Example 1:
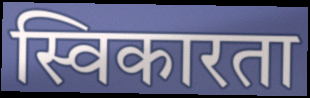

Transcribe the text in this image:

स्विकारता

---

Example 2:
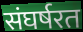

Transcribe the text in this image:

संघर्षरत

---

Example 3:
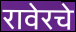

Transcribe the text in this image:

रावेरचे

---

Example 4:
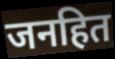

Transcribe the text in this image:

जनहित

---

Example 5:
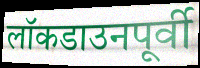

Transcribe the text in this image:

लॉकडाउनपूर्वी